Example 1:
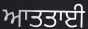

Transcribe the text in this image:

ਆਤਤਾਈ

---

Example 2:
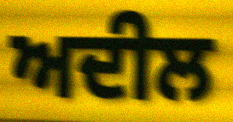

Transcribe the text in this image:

ਅਦੀਲ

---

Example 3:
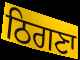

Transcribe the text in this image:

ਠਿਗਣਾ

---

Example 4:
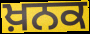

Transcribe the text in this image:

ਖ਼ਨਕ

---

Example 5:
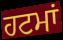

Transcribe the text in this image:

ਹਟਮਾਂ